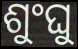
ଶୁଂଘୁ